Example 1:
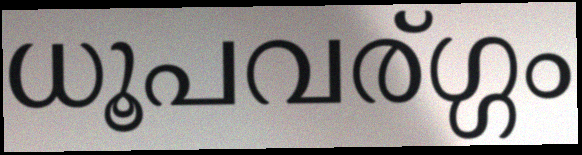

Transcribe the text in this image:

ധൂപവര്ഗ്ഗം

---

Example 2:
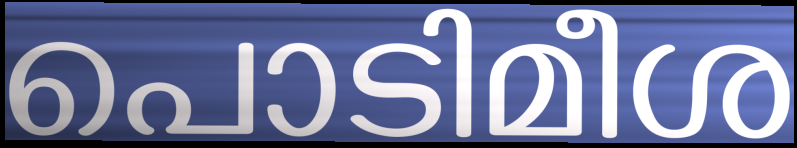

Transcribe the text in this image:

പൊടിമീശ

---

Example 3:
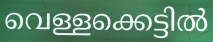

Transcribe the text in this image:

വെള്ളക്കെട്ടിൽ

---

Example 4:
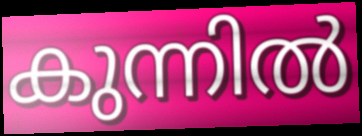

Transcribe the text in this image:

കുന്നിൽ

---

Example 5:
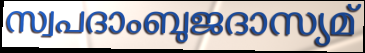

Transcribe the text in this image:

സ്വപദാംബുജദാസ്യമ്